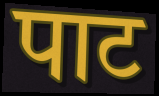
पाट